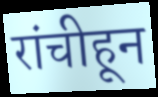
रांचीहून